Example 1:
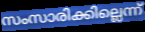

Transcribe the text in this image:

സംസാരിക്കില്ലെന്ന്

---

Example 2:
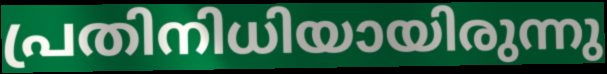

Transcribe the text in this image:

പ്രതിനിധിയായിരുന്നു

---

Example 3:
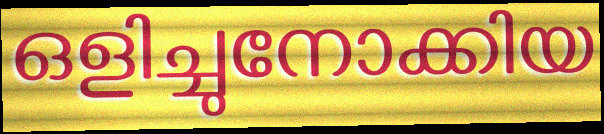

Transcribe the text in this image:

ഒളിച്ചുനോക്കിയ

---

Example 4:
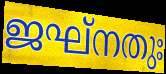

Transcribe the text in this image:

ജഘ്നതുഃ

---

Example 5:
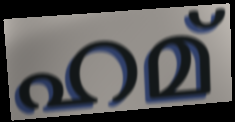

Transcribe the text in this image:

ഹമ്